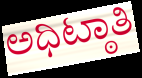
ಅಧಿಟ್ಠಾತಿ